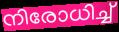
നിരോധിച്ച്